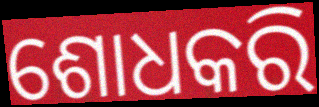
ଶୋଧକରି